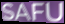
SAFU